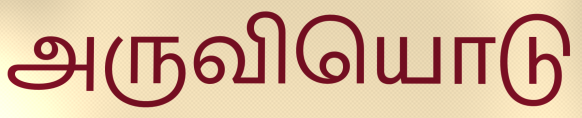
அருவியொடு